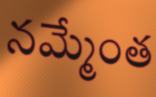
నమ్మేంత